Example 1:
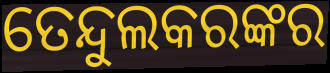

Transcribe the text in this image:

ତେନ୍ଦୁଲକରଙ୍କର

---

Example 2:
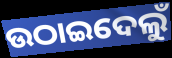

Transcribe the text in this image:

ଉଠାଇଦେଲୁଁ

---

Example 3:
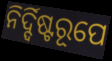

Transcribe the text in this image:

ନିର୍ଦ୍ଦିଷ୍ଟରୂପେ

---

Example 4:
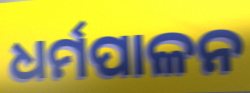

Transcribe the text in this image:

ଧର୍ମପାଳନ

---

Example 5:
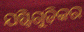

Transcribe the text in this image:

ଯଷ୍ଟିଗୁଡ଼ିକର